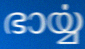
ഭാൎയ്യ